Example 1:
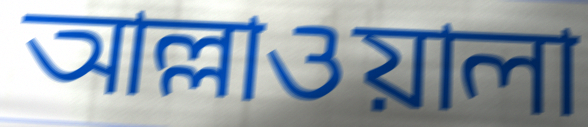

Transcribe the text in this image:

আল্লাওয়ালা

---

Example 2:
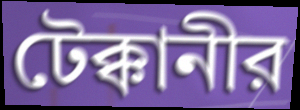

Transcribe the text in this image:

টেক্কানীর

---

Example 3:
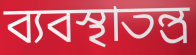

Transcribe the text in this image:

ব্যবস্থাতন্ত্র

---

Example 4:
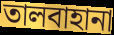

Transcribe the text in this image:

তালবাহানা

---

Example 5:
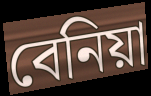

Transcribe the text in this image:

বেনিয়া